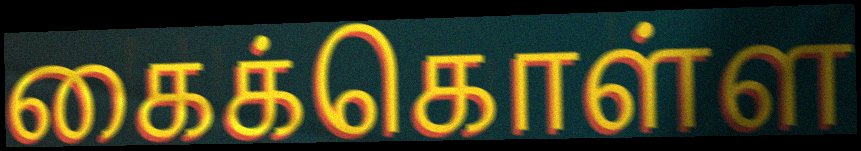
கைக்கொள்ள